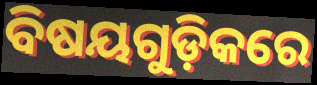
ବିଷୟଗୁଡ଼ିକରେ